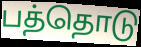
பத்தொடு